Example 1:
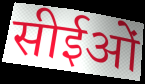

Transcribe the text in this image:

सीईओं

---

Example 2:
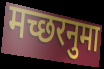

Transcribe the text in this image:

मच्छरनुमा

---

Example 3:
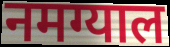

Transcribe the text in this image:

नमग्याल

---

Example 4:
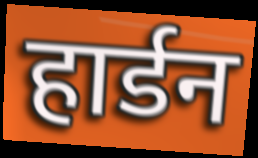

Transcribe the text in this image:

हार्डन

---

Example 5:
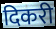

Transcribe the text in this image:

दिकरी